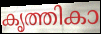
കൃത്തികാ